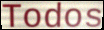
Todos